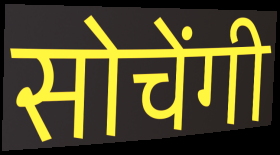
सोचेंगी